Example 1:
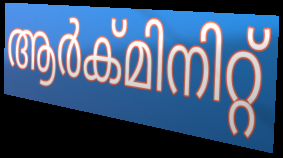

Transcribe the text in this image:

ആർക്മിനിറ്റ്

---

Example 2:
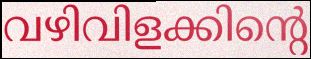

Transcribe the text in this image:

വഴിവിളക്കിന്റെ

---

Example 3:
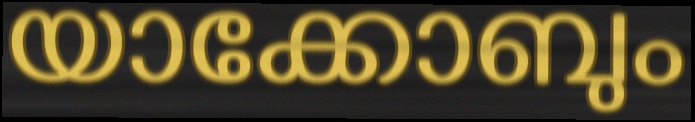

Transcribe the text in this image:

യാക്കോബും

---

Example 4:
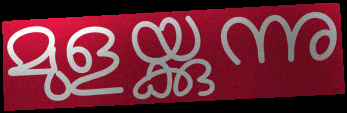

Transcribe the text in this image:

മുളയ്ക്കുന്നു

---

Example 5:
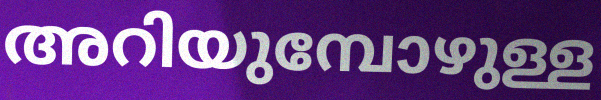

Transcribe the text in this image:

അറിയുമ്പോഴുള്ള